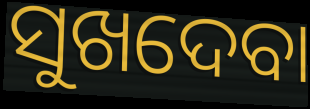
ସୁଖଦେବା